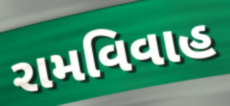
રામવિવાહ